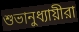
শুভানুধ্যায়ীরা